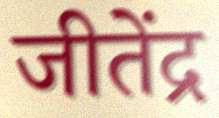
जीतेंद्र